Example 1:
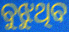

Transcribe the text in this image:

ବୁଝୁଥିବ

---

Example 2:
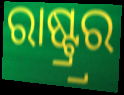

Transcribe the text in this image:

ରାଷ୍ଟ୍ର୍ରର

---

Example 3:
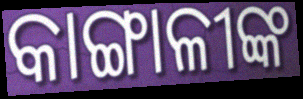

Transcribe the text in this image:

କାଙ୍ଗାଳୀଙ୍କ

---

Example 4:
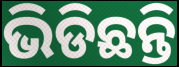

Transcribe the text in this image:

ଭିଡିଛନ୍ତି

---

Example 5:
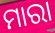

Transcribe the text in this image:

ମାରା